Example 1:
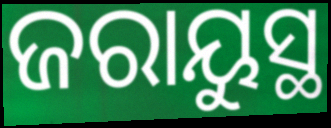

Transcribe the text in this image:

ଜରାୟୁସ୍ଥ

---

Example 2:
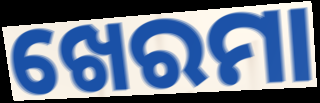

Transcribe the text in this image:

ଖେରମା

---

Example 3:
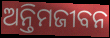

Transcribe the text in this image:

ଅନ୍ତିମଜୀବନ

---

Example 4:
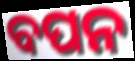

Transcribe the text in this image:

ବପନ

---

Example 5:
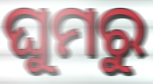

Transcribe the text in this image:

ଘୁମରୁ